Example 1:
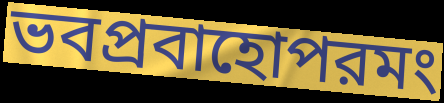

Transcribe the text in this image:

ভবপ্রবাহোপরমং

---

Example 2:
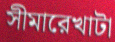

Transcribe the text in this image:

সীমারেখাটা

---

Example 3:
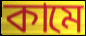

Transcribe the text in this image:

কামে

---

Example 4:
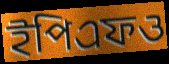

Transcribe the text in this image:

ইপিএফও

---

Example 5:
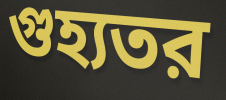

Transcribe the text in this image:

গুহ্যতর